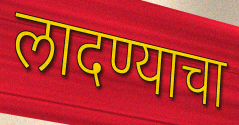
लादण्याचा